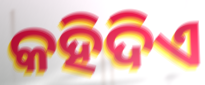
କହିଦିଏ